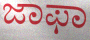
ಜಾಫಾ